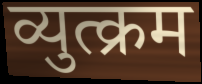
व्युत्क्रम